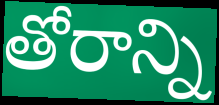
తోరాన్ని